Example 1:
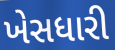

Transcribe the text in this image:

ખેસધારી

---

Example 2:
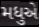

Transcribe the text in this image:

મધુએ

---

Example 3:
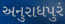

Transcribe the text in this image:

અનુરાધપુરં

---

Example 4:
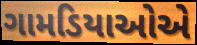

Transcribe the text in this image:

ગામડિયાઓએ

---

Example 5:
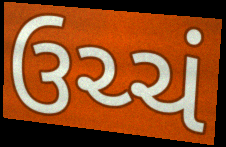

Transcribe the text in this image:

ઉચ્ચં